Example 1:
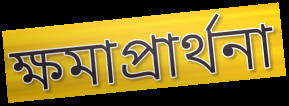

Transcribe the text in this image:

ক্ষমাপ্রার্থনা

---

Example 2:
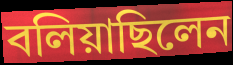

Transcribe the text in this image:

বলিয়াছিলেন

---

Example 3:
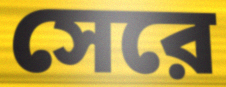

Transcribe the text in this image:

সেরে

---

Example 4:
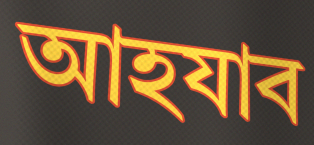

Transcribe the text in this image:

আহযাব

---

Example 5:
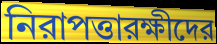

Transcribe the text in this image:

নিরাপত্তারক্ষীদের